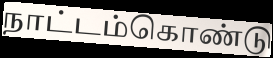
நாட்டம்கொண்டு